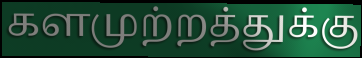
களமுற்றத்துக்கு